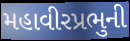
મહાવીરપ્રભુની